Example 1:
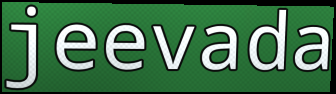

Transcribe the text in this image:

jeevada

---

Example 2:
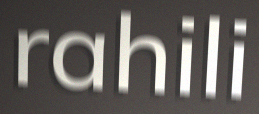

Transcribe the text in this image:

rahili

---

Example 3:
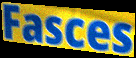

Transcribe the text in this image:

Fasces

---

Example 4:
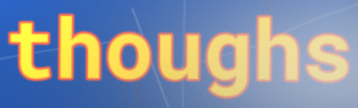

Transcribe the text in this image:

thoughs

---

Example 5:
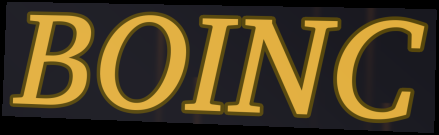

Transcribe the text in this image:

BOINC